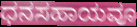
ಧನಸಹಾಯವೂ